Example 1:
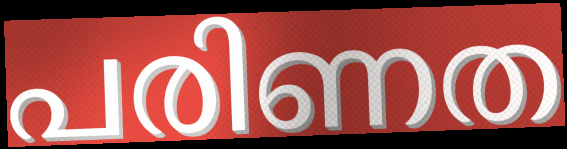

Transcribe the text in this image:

പരിണത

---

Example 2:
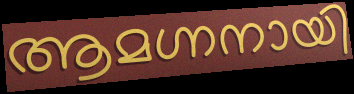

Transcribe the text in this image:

ആമഗ്നനായി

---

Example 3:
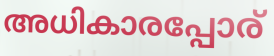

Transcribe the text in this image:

അധികാരപ്പോര്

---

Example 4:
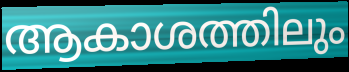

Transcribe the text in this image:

ആകാശത്തിലും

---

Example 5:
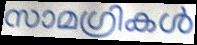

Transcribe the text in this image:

സാമഗ്രികൾ